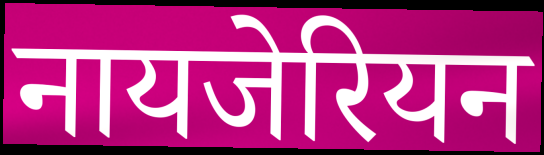
नायजेरियन